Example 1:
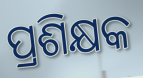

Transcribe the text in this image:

ପ୍ରଶିକ୍ଷକ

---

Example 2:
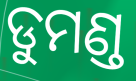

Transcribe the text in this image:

ଡୁମଣ୍ଡ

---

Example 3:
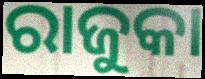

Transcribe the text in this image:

ରାଜୁକା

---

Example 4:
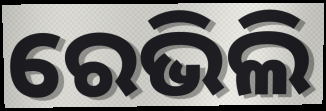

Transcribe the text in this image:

ରେଭିଲି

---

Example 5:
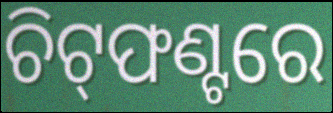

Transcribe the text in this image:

ଚିଟ୍‌ଫଣ୍ଟରେ